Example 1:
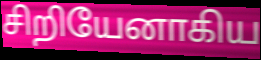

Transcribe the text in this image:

சிறியேனாகிய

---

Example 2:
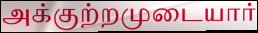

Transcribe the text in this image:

அக்குற்றமுடையார்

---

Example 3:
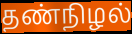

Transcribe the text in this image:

தண்நிழல்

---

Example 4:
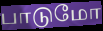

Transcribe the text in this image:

பாடுமோ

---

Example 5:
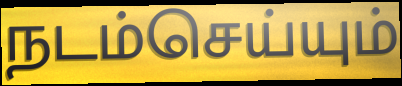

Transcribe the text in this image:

நடம்செய்யும்